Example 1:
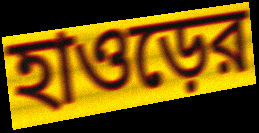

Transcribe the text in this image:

হাওড়ের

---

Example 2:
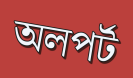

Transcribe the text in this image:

অলপর্ট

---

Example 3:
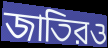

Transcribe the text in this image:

জাতিরও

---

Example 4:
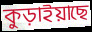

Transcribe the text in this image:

কুড়াইয়াছে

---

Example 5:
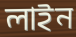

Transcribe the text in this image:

লাইন